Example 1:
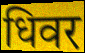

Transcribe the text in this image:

धिवर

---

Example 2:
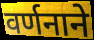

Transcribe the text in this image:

वर्णनाने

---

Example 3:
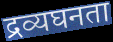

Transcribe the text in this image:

द्रव्यघनता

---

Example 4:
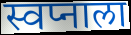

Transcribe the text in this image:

स्वप्नाला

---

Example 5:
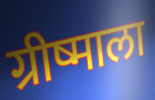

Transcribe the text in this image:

ग्रीष्माला